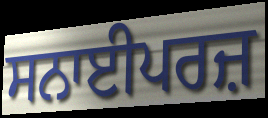
ਸਨਾਈਪਰਜ਼